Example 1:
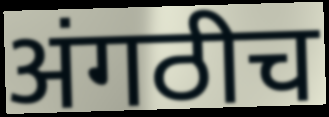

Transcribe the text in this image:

अंगठीच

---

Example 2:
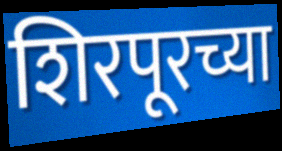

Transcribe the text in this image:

शिरपूरच्या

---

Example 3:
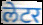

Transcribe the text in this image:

लेटर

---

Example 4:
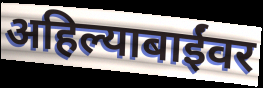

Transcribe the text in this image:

अहिल्याबाईंवर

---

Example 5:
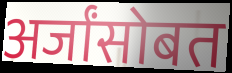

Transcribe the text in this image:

अर्जांसोबत